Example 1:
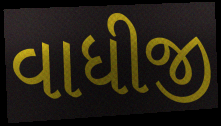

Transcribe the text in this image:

વાધીજી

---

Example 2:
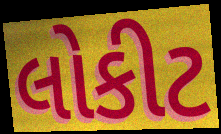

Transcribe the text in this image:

લોકીટ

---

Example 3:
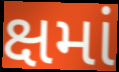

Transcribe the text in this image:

ક્ષમાં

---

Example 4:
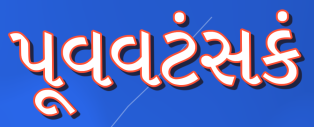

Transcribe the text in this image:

પૂવવટંસકં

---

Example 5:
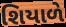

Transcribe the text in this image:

શિયાળે